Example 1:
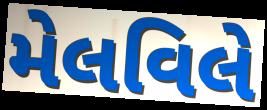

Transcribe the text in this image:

મેલવિલે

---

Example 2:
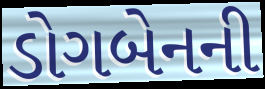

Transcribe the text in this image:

ડોગબેનની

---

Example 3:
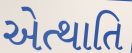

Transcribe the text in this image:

એત્થાતિ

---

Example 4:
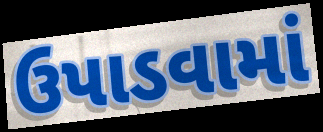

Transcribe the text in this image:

ઉપાડવામાં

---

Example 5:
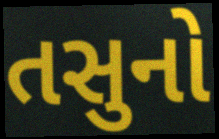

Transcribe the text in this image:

તસુનો